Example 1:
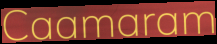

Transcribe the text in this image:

Caamaram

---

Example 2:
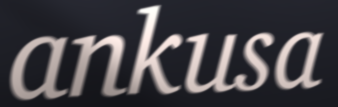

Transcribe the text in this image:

ankusa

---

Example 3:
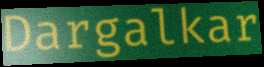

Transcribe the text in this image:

Dargalkar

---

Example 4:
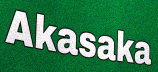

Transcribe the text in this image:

Akasaka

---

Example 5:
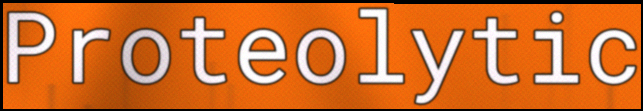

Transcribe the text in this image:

Proteolytic